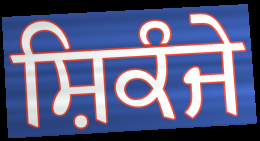
ਸ਼ਿਕੰਜੇ